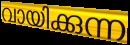
വായിക്കുന്ന